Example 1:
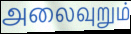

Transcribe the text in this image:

அலைவுறும்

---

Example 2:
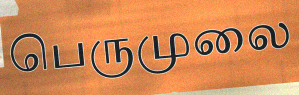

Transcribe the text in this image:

பெருமுலை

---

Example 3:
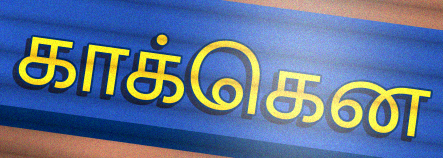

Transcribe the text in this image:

காக்கென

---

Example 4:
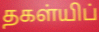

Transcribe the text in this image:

தகள்யிப்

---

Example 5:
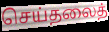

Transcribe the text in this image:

செய்தலைத்